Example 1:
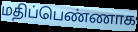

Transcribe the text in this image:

மதிப்பெண்ணாக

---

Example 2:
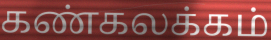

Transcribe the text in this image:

கண்கலக்கம்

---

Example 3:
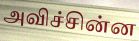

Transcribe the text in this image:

அவிச்சின்ன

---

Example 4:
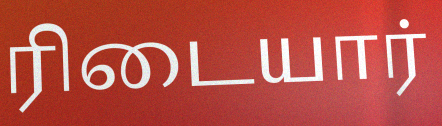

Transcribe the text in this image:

ரிடையார்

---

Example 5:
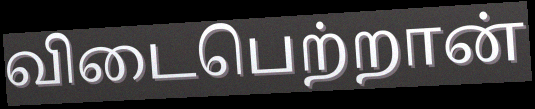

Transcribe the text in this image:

விடைபெற்றான்